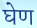
घेण